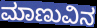
ಮಾಣುವಿನ